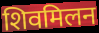
शिवमिलन